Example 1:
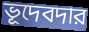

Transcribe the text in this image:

ভূদেবদার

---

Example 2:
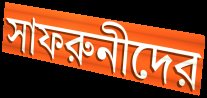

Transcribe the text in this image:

সাফরুনীদের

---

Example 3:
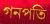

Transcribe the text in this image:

গনপতি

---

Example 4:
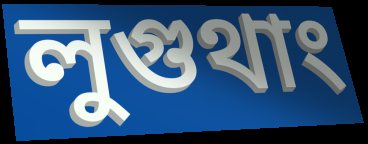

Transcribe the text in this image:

লুগুথাং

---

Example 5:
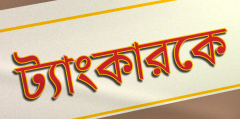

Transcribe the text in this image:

ট্যাংকারকে